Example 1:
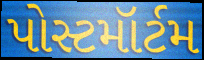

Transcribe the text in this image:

પોસ્ટમૉર્ટમ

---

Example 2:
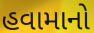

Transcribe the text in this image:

હવામાનો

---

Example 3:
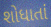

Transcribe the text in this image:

શોધાતાં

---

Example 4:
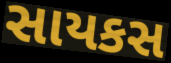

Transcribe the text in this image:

સાયકસ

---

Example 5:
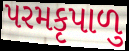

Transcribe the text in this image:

પરમકૃપાળુ